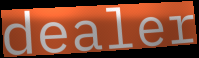
dealer